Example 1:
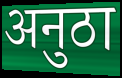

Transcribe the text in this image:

अनुठा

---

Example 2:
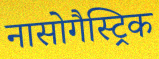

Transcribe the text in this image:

नासोगैस्ट्रिक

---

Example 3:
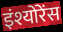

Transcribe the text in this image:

इंश्योरेंस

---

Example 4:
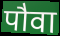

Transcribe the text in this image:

पौवा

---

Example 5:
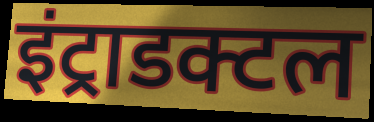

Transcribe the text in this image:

इंट्राडक्टल